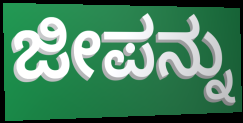
ಜೀಪನ್ನು